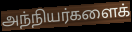
அந்நியர்களைக்